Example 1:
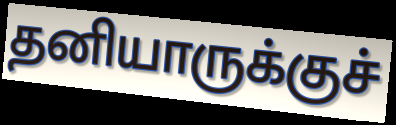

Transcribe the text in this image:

தனியாருக்குச்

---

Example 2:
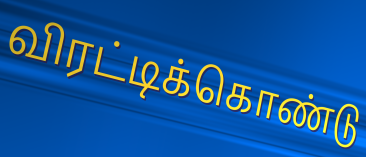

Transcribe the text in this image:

விரட்டிக்கொண்டு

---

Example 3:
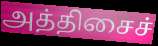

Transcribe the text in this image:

அத்திசைச்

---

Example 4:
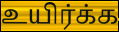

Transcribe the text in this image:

உயிர்க்க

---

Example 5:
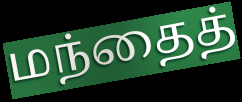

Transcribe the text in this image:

மந்தைத்